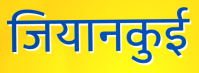
जियानकुई